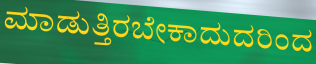
ಮಾಡುತ್ತಿರಬೇಕಾದುದರಿಂದ